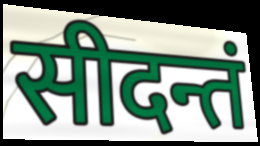
सीदन्तं